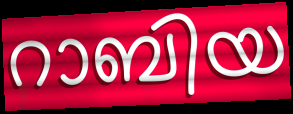
റാബിയ